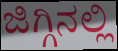
ಜಿಗ್ಗಿನಲ್ಲಿ